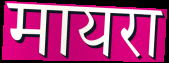
मायरा